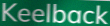
Keelback